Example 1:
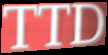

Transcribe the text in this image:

TTD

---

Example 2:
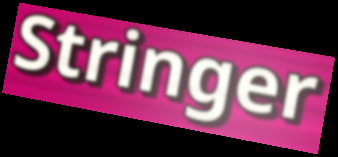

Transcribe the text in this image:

Stringer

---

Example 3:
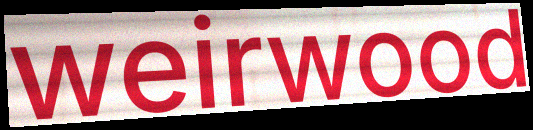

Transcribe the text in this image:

weirwood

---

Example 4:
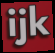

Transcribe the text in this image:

ijk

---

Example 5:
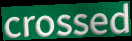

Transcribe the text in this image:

crossed